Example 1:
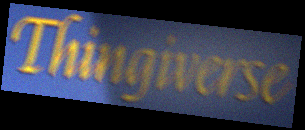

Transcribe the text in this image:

Thingiverse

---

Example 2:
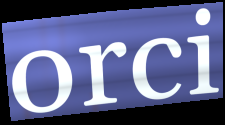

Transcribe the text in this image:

orci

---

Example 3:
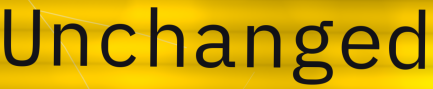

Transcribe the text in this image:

Unchanged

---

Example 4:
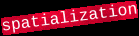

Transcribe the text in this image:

spatialization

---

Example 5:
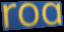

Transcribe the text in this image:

roa